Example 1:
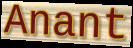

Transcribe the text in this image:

Anant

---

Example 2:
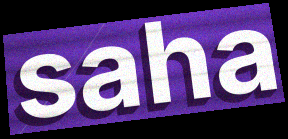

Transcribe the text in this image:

saha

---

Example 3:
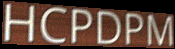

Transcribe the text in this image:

HCPDPM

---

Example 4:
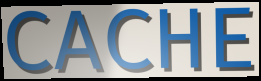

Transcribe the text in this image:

CACHE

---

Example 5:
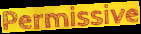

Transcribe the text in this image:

Permissive